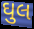
ઘુલ